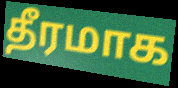
தீரமாக